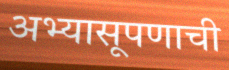
अभ्यासूपणाची